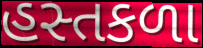
હસ્તકળા